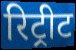
रिट्रीट